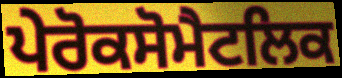
ਪੇਰੋਕਸੋਮੈਟਲਿਕ